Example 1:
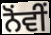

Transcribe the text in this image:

ਨੋਂਵੀਂ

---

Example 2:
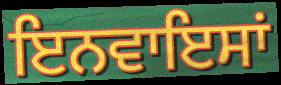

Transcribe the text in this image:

ਇਨਵਾਇਸਾਂ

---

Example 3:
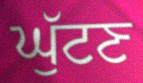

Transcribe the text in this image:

ਘੁੱਟਣ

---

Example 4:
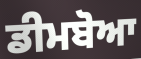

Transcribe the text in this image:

ਡੀਮਬੋਆ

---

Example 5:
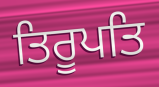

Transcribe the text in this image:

ਤਿਰੂਪਤਿ